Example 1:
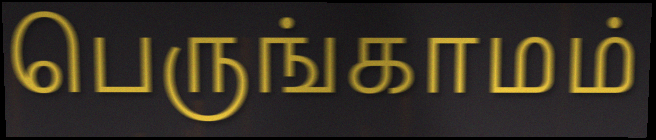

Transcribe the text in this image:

பெருங்காமம்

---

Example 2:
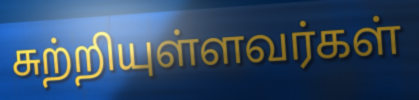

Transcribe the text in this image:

சுற்றியுள்ளவர்கள்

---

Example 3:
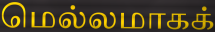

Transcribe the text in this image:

மெல்லமாகக்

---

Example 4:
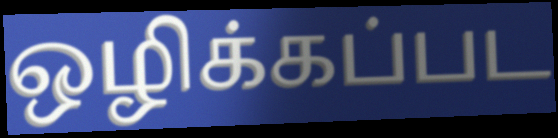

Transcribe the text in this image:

ஒழிக்கப்பட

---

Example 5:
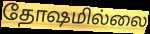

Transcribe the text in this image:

தோஷமில்லை